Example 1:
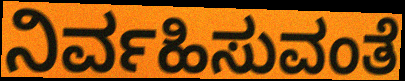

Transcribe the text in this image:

ನಿರ್ವಹಿಸುವಂತೆ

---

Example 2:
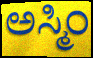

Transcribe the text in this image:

ಅಸ್ಮಿಂ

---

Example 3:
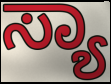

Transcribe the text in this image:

ಸ್ಯಾ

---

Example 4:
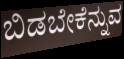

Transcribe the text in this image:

ಬಿಡಬೇಕೆನ್ನುವ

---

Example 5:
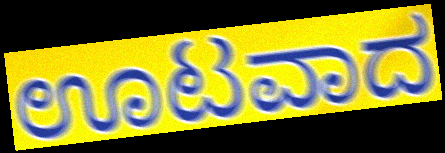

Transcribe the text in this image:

ಊಟವಾದ